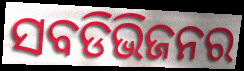
ସବଡିଭିଜନର